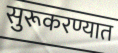
सुरूकरण्यात